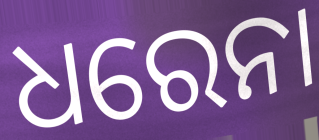
ଧରେନା